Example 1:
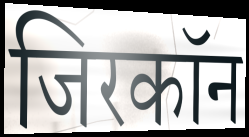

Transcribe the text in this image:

जिरकॉन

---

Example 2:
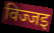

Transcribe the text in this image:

विज्जइ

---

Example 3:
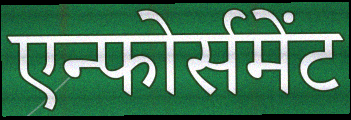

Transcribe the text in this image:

एन्फोर्समेंट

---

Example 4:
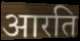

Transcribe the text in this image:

आरति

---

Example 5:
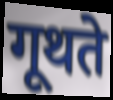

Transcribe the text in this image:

गूथते